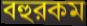
বহুরকম